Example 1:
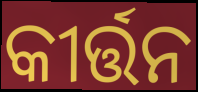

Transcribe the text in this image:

କୀର୍ତ୍ତନ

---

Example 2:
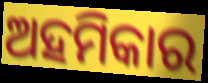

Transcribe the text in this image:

ଅହମିକାର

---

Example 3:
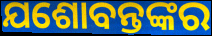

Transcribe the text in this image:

ଯଶୋବନ୍ତଙ୍କର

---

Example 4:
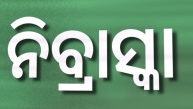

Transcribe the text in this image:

ନିବ୍ରାସ୍କା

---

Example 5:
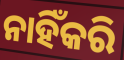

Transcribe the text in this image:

ନାହିଁକରି